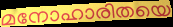
മനോഹാരിതയെ